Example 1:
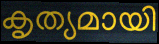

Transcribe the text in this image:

കൃത്യമായി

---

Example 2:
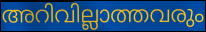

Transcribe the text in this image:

അറിവില്ലാത്തവരും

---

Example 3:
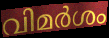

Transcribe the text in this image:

വിമർശം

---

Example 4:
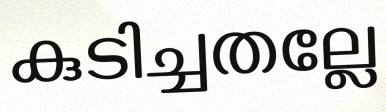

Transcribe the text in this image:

കുടിച്ചതല്ലേ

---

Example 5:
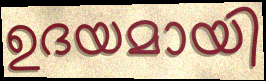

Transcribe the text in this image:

ഉദയമായി